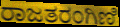
ರಾಜತರಂಗಿಣಿ